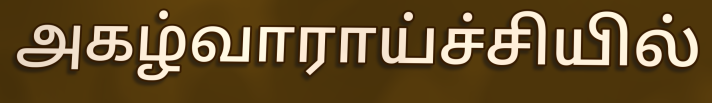
அகழ்வாராய்ச்சியில்